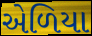
એળિયા